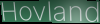
Hovland